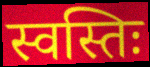
स्वस्तिः